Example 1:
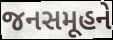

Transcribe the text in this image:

જનસમૂહને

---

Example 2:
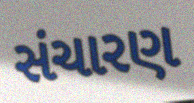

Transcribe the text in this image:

સંચારણ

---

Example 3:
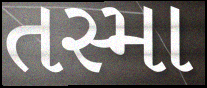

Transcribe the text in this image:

તસ્મા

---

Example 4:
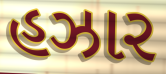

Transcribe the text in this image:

હઝાર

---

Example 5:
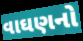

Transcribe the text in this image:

વાઘણનો